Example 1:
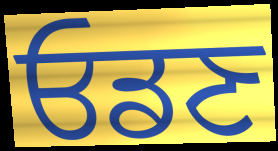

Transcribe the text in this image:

ਓਡਣ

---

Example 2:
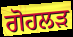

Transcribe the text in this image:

ਗੋਹਲੜ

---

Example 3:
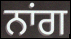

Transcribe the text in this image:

ਨਾਂਗ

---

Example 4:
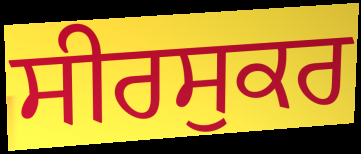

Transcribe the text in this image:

ਸੀਰਸੁਕਰ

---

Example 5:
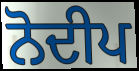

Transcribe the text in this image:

ਨੋਦੀਪ